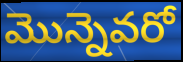
మొన్నెవరో